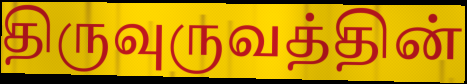
திருவுருவத்தின்